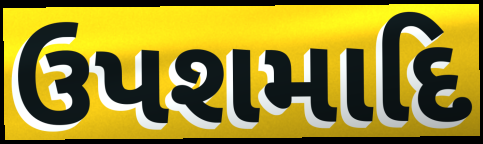
ઉપશમાદિ